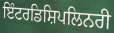
ਇੰਟਰਡਿਸ਼ਿਪਲਿਨਰੀ